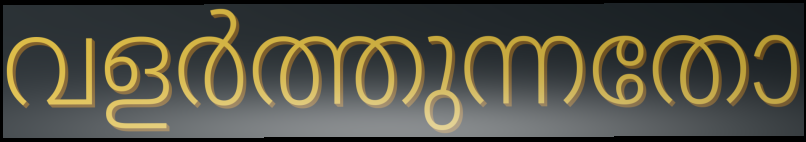
വളർത്തുന്നതോ